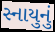
સ્નાયુનું